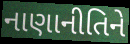
નાણાનીતિને